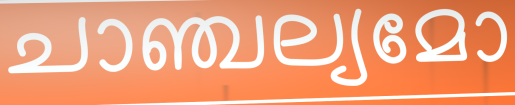
ചാഞ്ചല്യമോ